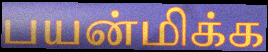
பயன்மிக்க